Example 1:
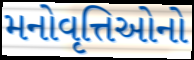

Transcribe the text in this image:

મનોવૃત્તિઓનો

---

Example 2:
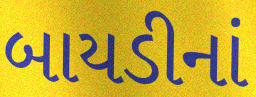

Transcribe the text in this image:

બાયડીનાં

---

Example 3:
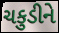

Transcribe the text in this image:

ચકુડીને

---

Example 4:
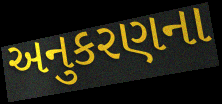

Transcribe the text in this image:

અનુકરણના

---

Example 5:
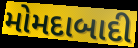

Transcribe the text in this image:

મોમદાબાદી